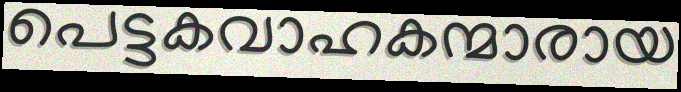
പെട്ടകവാഹകന്മാരായ